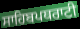
ਸਾਹਿਬਪਥਰਾਟੀ